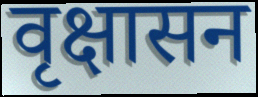
वृक्षासन